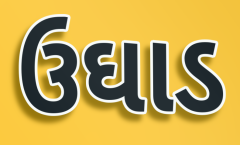
ઉઘાડ